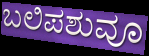
ಬಲಿಪಶುವೂ